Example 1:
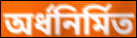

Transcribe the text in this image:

অর্ধনির্মিত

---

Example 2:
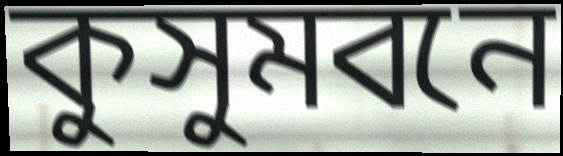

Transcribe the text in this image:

কুসুমবনে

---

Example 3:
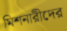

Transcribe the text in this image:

মিশনারীদের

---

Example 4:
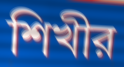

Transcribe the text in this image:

শিখীর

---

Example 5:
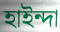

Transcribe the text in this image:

হাইন্দা